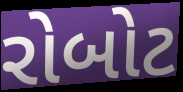
રોબોટ